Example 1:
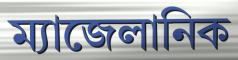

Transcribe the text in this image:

ম্যাজেলানিক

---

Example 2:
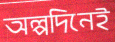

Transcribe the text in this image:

অল্পদিনেই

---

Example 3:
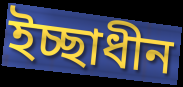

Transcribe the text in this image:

ইচ্ছাধীন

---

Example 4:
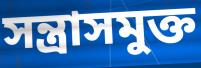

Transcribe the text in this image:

সন্ত্রাসমুক্ত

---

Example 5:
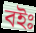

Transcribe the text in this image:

বইঃ